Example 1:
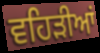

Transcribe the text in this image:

ਵਹਿੜੀਆਂ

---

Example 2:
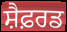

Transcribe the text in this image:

ਸ਼ੈਫ਼ਰਡ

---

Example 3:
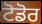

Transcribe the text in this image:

ਟੋਡੋਰ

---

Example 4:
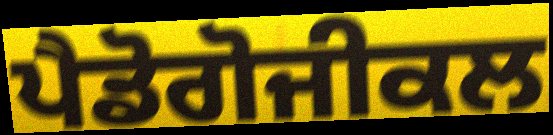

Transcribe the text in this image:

ਪੈਡੋਗੋਜੀਕਲ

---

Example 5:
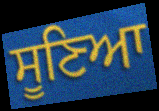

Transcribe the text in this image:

ਸੂਣਿਆ